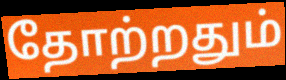
தோற்றதும்